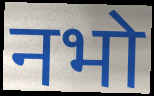
नभो